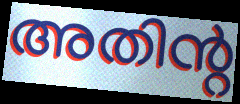
അതിന്റ